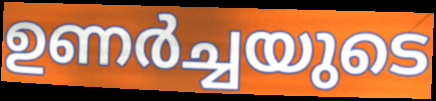
ഉണർച്ചയുടെ